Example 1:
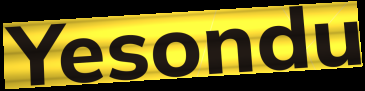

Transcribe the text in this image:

Yesondu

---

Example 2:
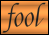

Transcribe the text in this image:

fool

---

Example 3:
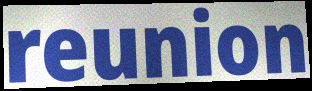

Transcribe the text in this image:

reunion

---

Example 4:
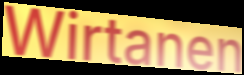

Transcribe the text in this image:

Wirtanen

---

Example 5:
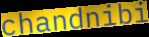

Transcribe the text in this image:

chandnibi